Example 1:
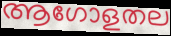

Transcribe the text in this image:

ആഗോളതല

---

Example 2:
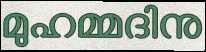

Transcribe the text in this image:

മുഹമ്മദിനു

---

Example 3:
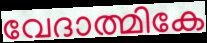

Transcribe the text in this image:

വേദാത്മികേ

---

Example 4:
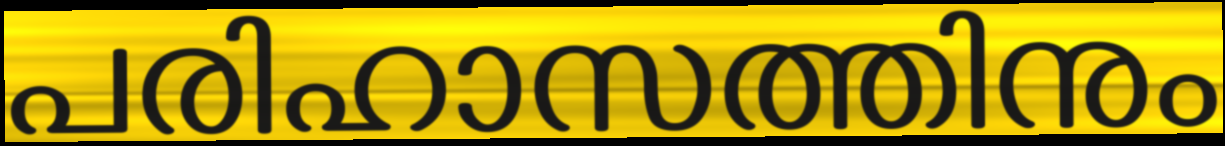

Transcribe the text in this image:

പരിഹാസത്തിനും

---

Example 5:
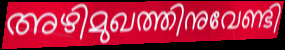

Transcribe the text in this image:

അഴിമുഖത്തിനുവേണ്ടി